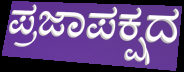
ಪ್ರಜಾಪಕ್ಷದ